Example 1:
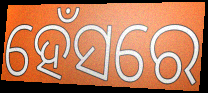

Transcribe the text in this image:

ହେଁସରେ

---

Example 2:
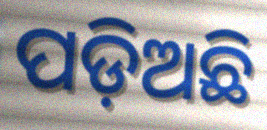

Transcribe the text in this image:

ପଡ଼ିଅଛି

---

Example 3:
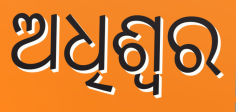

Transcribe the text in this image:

ଅଧିଶ୍ବର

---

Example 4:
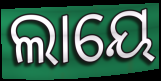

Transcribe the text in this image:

ଲାୟେ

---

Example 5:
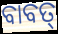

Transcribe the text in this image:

ବାବତ୍